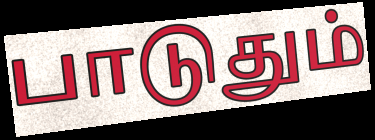
பாடுதும்